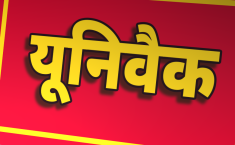
यूनिवैक